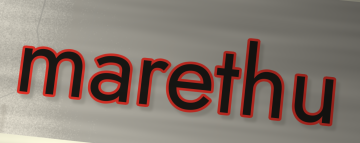
marethu